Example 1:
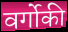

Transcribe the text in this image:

वर्गोकी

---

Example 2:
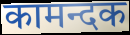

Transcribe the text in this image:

कामन्दक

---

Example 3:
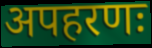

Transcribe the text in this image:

अपहरणः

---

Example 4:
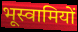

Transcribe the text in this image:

भूस्वामियों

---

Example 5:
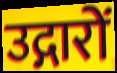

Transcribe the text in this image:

उद्गारों